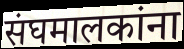
संघमालकांना